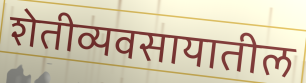
शेतीव्यवसायातील